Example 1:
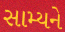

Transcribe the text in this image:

સામ્યને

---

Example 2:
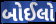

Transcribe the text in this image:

બોઈલો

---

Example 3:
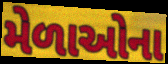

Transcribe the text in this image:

મેળાઓના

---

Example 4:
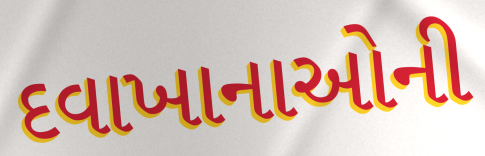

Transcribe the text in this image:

દવાખાનાઓની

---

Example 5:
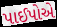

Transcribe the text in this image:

પાઈપોએ